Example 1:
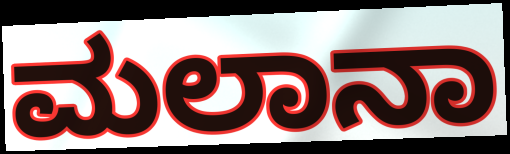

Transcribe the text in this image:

ಮಲಾನಾ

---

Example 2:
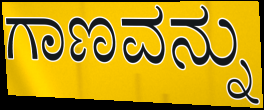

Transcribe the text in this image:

ಗಾಣವನ್ನು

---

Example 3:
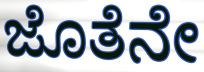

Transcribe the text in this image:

ಜೊತೆನೇ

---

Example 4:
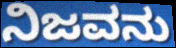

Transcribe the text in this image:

ನಿಜವನು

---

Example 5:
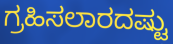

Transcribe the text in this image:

ಗ್ರಹಿಸಲಾರದಷ್ಟು